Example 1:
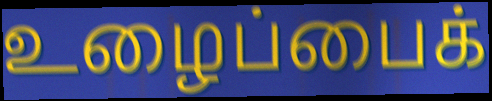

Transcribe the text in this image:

உழைப்பைக்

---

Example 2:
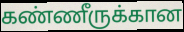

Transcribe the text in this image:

கண்ணீருக்கான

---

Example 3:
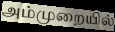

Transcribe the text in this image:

அம்முறையில்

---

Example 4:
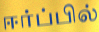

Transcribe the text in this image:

ஈர்ப்பில்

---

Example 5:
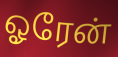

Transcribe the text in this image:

ஓரேன்